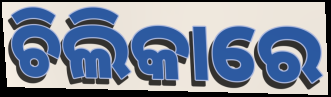
ଚିଲିକାରେ